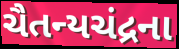
ચૈતન્યચંદ્રના